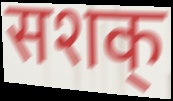
सशक्